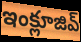
ఇంక్లూజివ్